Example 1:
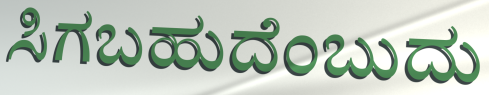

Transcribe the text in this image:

ಸಿಗಬಹುದೆಂಬುದು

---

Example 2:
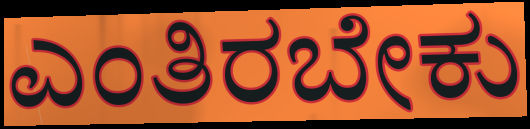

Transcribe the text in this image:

ಎಂತಿರಬೇಕು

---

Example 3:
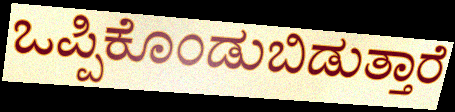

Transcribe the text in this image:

ಒಪ್ಪಿಕೊಂಡುಬಿಡುತ್ತಾರೆ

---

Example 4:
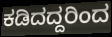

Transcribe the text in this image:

ಕಡಿದದ್ದರಿಂದ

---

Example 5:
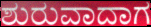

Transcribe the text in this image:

ಶುರುವಾದಾಗ